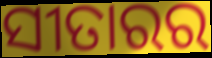
ସୀତାରର